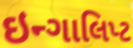
ઇન્ગાલિપ્ટ